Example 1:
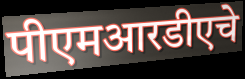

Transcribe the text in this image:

पीएमआरडीएचे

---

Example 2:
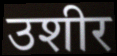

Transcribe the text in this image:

उशीर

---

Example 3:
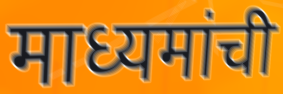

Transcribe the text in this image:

माध्यमांची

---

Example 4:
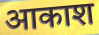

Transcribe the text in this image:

आकाश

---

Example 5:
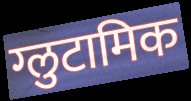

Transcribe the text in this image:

ग्लुटामिक